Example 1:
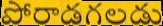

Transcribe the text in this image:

పోరాడగలడు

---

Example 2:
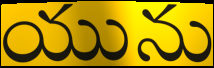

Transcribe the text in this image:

యును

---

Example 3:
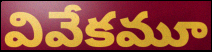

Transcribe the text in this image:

వివేకమూ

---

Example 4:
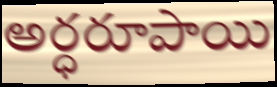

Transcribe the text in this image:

అర్ధరూపాయి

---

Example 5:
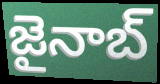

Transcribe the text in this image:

జైనాబ్